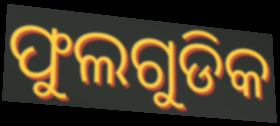
ଫୁଲଗୁଡିକ